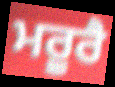
ਮਰੂਰੈ